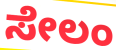
ಸೇಲಂ